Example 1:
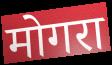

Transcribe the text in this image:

मोगरा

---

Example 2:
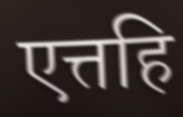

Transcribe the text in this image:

एत्तहि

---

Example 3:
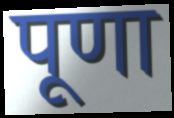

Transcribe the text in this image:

पूणा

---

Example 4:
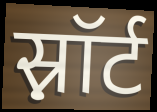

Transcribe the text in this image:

स्नॉर्ट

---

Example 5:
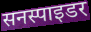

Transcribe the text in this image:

सनस्पाइडर